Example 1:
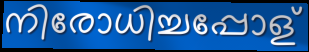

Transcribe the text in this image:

നിരോധിച്ചപ്പോള്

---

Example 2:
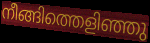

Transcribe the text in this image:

നീങ്ങിത്തെളിഞ്ഞു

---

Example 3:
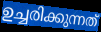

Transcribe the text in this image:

ഉച്ചരിക്കുന്നത്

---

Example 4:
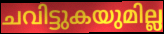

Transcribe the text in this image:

ചവിട്ടുകയുമില്ല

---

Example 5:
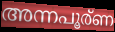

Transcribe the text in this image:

അന്നപൂര്ണ